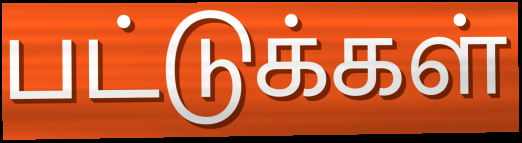
பட்டுக்கள்